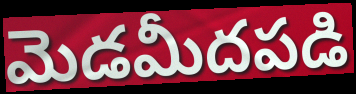
మెడమీదపడి